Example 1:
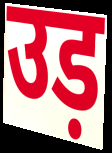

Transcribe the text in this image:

उड़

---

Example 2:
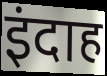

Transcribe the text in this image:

इंदाह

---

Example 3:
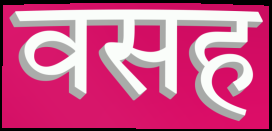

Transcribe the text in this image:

वसह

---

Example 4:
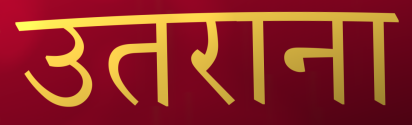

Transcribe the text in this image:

उतराना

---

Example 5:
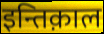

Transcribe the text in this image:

इन्तिक़ाल